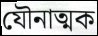
যৌনাত্মক